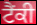
ਟੈਂਕੀ